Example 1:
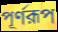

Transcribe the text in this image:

পূর্ণরূপ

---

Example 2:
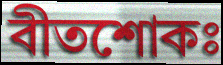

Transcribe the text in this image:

বীতশোকঃ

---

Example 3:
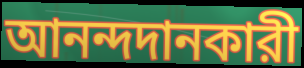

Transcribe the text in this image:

আনন্দদানকারী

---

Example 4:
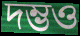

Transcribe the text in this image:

দম্ভও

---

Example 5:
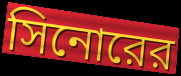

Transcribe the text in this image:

সিনোরের